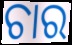
ଚାର